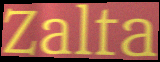
Zalta